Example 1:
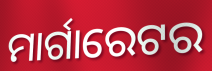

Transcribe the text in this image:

ମାର୍ଗାରେଟର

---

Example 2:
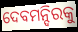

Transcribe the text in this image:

ଦେବମନ୍ଦିରକୁ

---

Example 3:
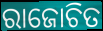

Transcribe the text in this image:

ରାଜୋଚିତ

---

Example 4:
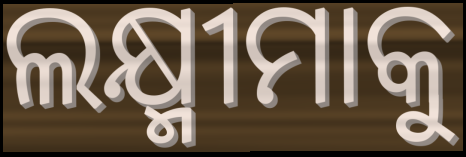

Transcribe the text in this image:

ଲକ୍ଷ୍ମୀମାକୁ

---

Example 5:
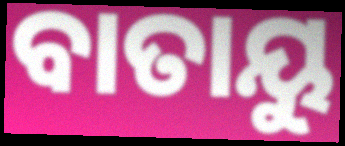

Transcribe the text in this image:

ବାତାୟୁ